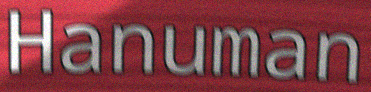
Hanuman